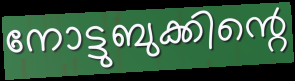
നോട്ടുബുക്കിന്റെ